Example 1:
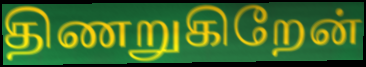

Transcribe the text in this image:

திணறுகிறேன்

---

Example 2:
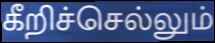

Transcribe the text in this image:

கீறிச்செல்லும்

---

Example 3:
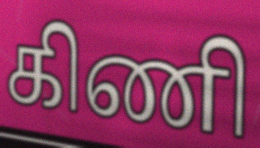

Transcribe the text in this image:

கிணி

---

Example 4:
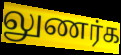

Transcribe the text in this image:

லுணர்க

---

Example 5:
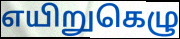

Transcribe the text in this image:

எயிறுகெழு